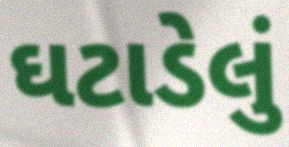
ઘટાડેલું